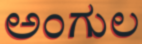
ಅಂಗುಲ